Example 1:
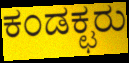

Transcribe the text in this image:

ಕಂಡಕ್ಟರು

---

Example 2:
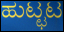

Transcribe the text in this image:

ಹುಟ್ಟಟ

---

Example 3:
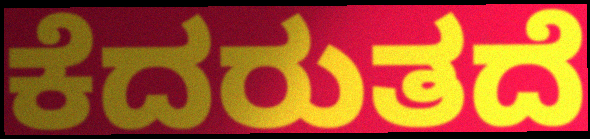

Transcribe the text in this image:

ಕೆದರುತದೆ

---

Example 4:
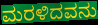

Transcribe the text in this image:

ಮರಳಿದವನು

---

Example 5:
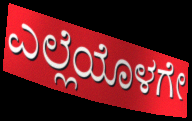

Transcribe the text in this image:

ಎಲ್ಲೆಯೊಳಗೇ